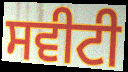
ਸਵੀਟੀ